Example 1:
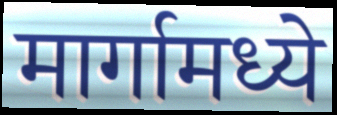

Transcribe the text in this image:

मार्गामध्ये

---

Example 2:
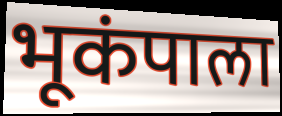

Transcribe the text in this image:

भूकंपाला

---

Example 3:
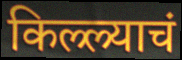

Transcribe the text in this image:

किल्ल्याचं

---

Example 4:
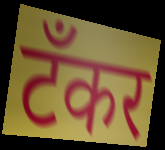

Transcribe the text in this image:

टँकर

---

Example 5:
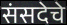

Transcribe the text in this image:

संसदेचे